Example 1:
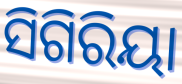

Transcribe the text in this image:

ସିଗିରିୟା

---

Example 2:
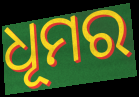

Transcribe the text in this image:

ଧୂମର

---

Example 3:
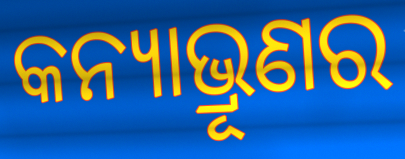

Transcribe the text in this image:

କନ୍ୟାଭ୍ରୂଣର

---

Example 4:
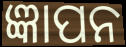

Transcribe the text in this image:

ଜ୍ଞାପନ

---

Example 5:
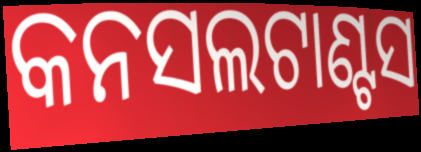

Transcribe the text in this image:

କନସଲଟାଣ୍ଟସ